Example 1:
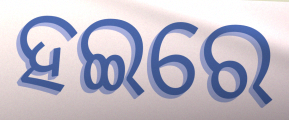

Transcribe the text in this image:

ହଇରେ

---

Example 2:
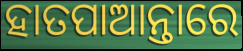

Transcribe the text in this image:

ହାତପାଆନ୍ତାରେ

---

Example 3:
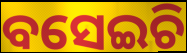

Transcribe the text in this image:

ବସେଇଚି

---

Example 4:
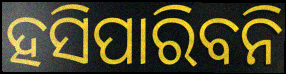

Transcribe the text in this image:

ହସିପାରିବନି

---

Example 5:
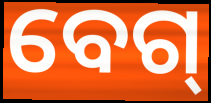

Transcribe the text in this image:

ବେଗ୍